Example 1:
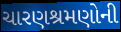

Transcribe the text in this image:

ચારણશ્રમણોની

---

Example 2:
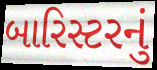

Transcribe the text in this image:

બારિસ્ટરનું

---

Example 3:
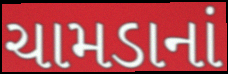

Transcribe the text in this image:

ચામડાનાં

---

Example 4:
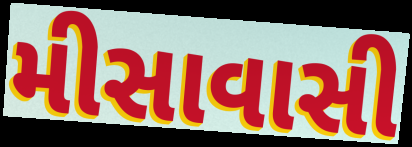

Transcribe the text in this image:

મીસાવાસી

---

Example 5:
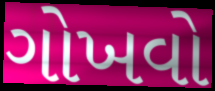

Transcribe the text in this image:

ગોખવો